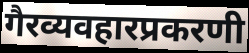
गैरव्यवहारप्रकरणी